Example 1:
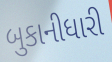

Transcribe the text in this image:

બુકાનીધારી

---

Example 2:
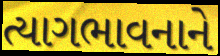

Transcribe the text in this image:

ત્યાગભાવનાને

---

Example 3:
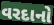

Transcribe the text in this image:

વરદાનો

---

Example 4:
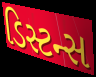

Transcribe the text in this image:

ડિસ્ટન્સ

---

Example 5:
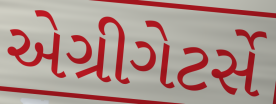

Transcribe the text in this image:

એગ્રીગેટર્સે